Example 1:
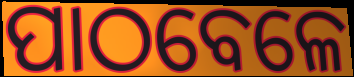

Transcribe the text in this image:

ପାଠବେଳେ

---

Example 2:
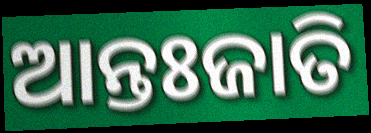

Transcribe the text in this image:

ଆନ୍ତଃଜାତି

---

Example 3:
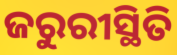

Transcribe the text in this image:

ଜରୁରୀସ୍ଥିତି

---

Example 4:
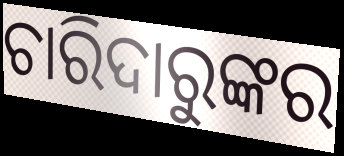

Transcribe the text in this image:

ଚାରିଦାରୁଙ୍କର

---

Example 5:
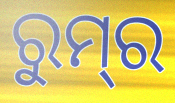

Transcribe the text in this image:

ରୁମ୍‍ର